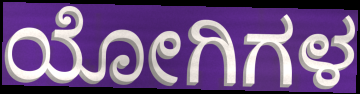
ಯೋಗಿಗಳ